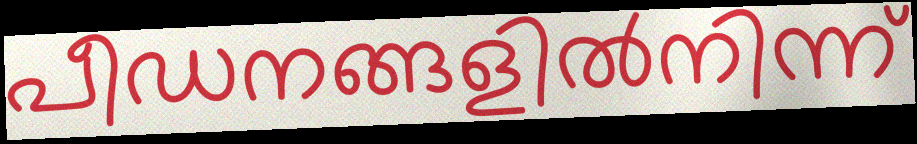
പീഡനങ്ങളിൽനിന്ന്